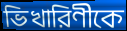
ভিখারিণীকে